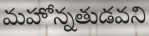
మహోన్నతుడవని